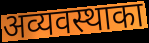
अव्यवस्थाका